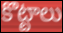
కొట్టాలు